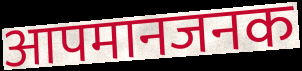
आपमानजनक